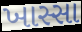
ખાસ્સા